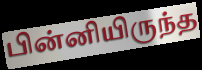
பின்னியிருந்த